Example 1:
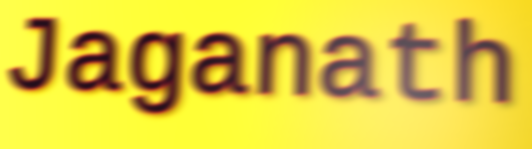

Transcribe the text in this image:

Jaganath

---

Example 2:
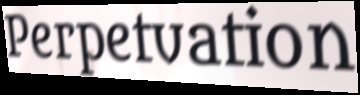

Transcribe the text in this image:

Perpetuation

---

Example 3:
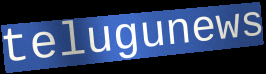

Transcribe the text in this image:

telugunews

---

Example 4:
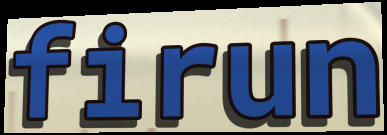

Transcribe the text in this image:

firun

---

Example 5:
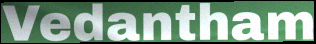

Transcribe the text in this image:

Vedantham